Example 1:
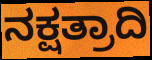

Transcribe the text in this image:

ನಕ್ಷತ್ರಾದಿ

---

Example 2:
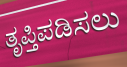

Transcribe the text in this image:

ತೃಪ್ತಿಪಡಿಸಲು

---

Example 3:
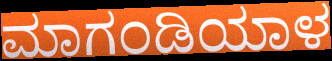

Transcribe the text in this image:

ಮಾಗಂಡಿಯಾಳ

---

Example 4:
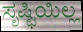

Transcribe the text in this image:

ಸೃಷ್ಟಿಯಿಲ್ಲ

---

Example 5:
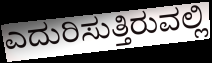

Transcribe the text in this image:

ಎದುರಿಸುತ್ತಿರುವಲ್ಲಿ